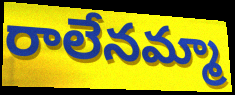
రాలేనమ్మా